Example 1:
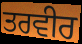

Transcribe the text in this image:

ਤਰਵੀਰ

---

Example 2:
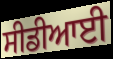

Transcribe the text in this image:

ਸੀਡੀਆਈ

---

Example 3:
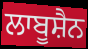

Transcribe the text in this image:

ਲਾਬੂਸ਼ੈਨ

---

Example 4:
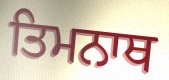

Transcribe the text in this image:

ਤਿਮਨਾਥ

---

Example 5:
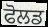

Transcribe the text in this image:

ਫੋਲਡ